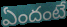
ఏందంటే